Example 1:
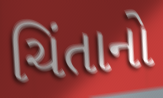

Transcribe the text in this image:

ચિંતાનો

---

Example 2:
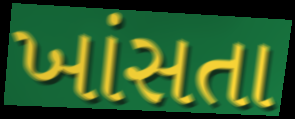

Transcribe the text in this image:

ખાંસતા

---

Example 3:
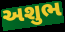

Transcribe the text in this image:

અશુભ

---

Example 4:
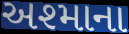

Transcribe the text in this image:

અશ્માના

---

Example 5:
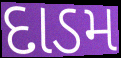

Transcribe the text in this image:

દાડમ